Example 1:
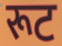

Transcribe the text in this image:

रूट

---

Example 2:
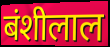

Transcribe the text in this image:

बंशीलाल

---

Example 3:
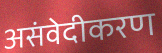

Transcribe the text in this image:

असंवेदीकरण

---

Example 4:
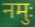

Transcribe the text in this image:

नमुः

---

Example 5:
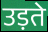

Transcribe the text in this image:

उड़ते